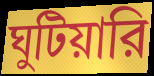
ঘুটিয়ারি